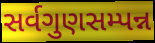
સર્વગુણસમ્પન્ન